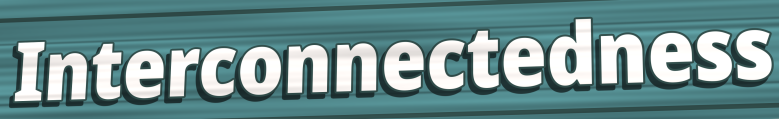
Interconnectedness